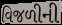
વિજળીની